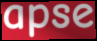
apse